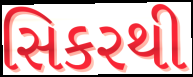
સિકરથી